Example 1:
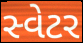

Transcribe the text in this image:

સ્વેટર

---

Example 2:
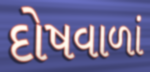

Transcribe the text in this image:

દોષવાળાં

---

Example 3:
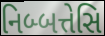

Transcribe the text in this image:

નિબ્બત્તેસિ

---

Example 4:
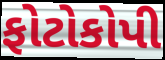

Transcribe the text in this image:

ફોટોકોપી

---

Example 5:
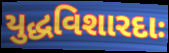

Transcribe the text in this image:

યુદ્ધવિશારદાઃ